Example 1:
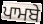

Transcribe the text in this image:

ਪਾਮਬੇ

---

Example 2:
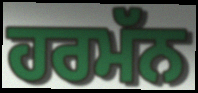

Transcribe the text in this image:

ਹਰਮੱਨ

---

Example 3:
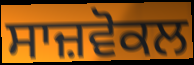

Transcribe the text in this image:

ਸਾਜ਼ਵੋਕਲ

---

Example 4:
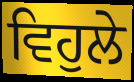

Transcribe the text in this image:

ਵਿਹੁਲੇ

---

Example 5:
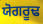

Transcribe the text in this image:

ਯੋਗਰੂਢ